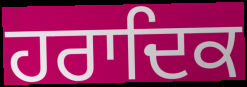
ਹਰਾਦਿਕ